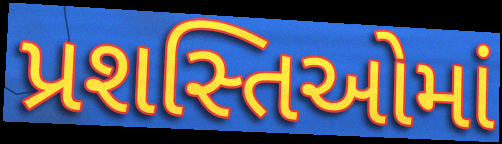
પ્રશસ્તિઓમાં